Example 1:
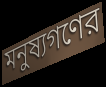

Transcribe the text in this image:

মনুষ্যগণের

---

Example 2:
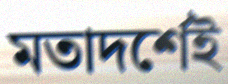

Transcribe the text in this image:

মতাদর্শেই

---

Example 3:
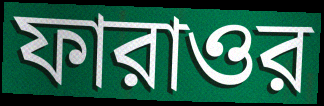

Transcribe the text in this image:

ফারাওর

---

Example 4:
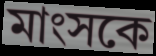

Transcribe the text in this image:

মাংসকে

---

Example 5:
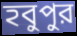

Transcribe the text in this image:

হবুপুর